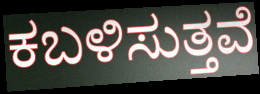
ಕಬಳಿಸುತ್ತವೆ